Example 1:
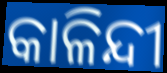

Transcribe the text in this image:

କାଳିନ୍ଦୀ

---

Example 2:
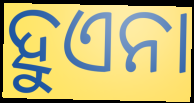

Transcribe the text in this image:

ହୁଏନା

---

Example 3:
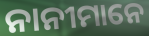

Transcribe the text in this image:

ନାନୀମାନେ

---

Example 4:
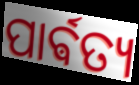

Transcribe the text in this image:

ପାର୍ଵତ୍ଯ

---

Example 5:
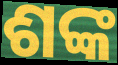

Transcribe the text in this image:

ଶଙ୍କ